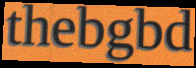
thebgbd